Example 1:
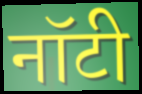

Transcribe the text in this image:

नॉटी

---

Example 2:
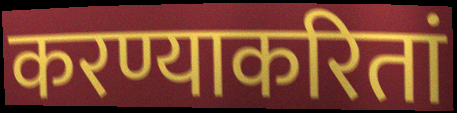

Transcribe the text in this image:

करण्याकरितां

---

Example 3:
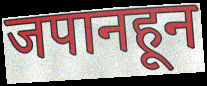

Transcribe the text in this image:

जपानहून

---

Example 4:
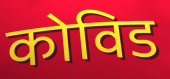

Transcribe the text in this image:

कोविड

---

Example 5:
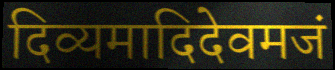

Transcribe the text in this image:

दिव्यमादिदेवमजं